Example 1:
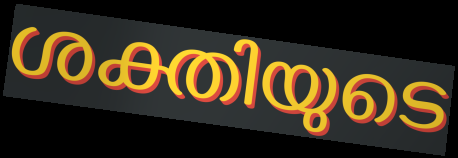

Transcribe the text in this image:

ശക്തിയുടെ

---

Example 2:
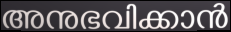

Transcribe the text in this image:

അനുഭവിക്കാൻ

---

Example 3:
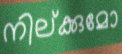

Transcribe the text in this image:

നില്ക്കുമോ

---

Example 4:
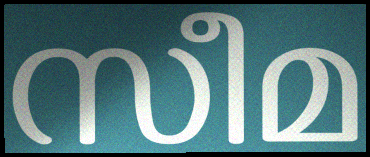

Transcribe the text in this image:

സീമ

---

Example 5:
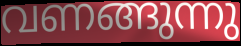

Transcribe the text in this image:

വണങ്ങുന്നു